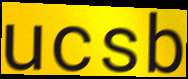
ucsb